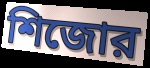
শিজোর